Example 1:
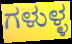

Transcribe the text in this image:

ಗಳುಳ್ಳ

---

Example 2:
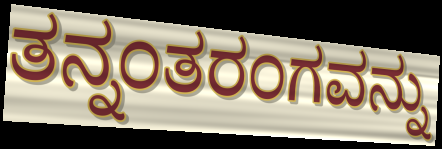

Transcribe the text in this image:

ತನ್ನಂತರಂಗವನ್ನು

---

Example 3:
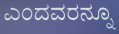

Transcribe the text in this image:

ಎಂದವರನ್ನೂ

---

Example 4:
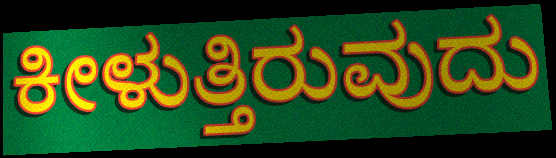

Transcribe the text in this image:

ಕೀಳುತ್ತಿರುವುದು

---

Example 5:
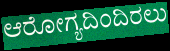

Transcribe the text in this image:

ಆರೋಗ್ಯದಿಂದಿರಲು